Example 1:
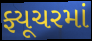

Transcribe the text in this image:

ફ્યૂચરમાં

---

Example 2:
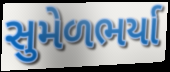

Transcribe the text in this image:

સુમેળભર્યા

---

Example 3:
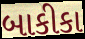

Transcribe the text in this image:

બાકીકા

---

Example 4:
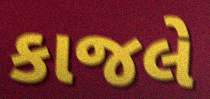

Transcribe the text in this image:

કાજલે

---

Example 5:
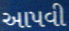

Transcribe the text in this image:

આપવી